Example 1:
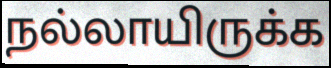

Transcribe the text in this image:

நல்லாயிருக்க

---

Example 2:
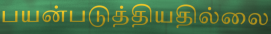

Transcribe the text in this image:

பயன்படுத்தியதில்லை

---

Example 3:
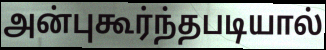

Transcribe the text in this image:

அன்புகூர்ந்தபடியால்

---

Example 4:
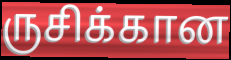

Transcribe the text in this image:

ருசிக்கான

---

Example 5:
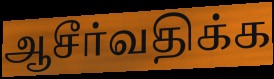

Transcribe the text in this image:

ஆசீர்வதிக்க